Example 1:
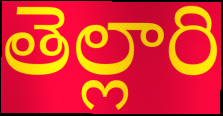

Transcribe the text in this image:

తెల్లారి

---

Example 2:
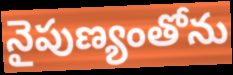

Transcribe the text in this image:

నైపుణ్యంతోను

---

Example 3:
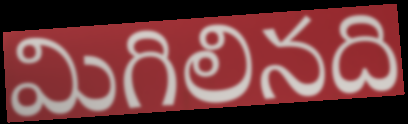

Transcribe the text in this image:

మిగిలినది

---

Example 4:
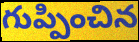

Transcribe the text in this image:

గుప్పించిన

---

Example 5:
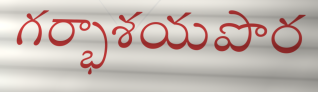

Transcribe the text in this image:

గర్భాశయపొర